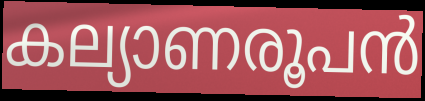
കല്യാണരൂപൻ